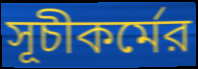
সূচীকর্মের